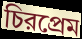
চিরপ্রেম